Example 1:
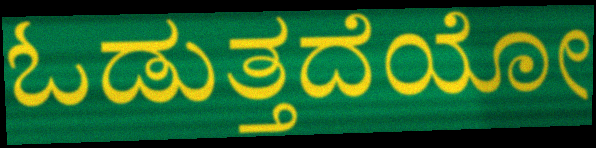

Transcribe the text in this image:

ಓಡುತ್ತದೆಯೋ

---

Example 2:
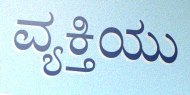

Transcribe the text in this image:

ವ್ಯಕ್ತಿಯು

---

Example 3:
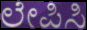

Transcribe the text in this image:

ಲೇಪಿಸಿ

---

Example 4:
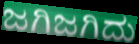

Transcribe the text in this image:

ಜಗಿಜಗಿದು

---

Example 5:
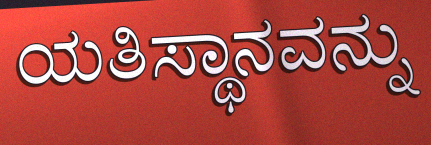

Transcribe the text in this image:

ಯತಿಸ್ಥಾನವನ್ನು